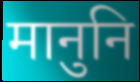
मानुनि